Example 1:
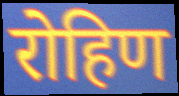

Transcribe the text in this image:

रोहिण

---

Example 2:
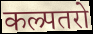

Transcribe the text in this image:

कल्पतरो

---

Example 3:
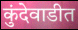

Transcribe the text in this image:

कुंदेवाडीत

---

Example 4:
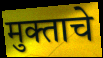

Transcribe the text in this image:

मुक्ताचे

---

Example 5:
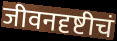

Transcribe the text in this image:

जीवनदृष्टीचं